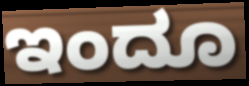
ಇಂದೂ